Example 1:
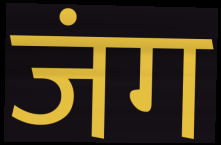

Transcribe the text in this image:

जंग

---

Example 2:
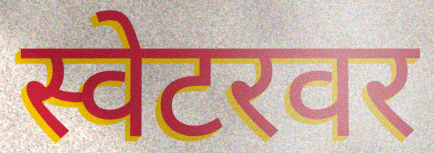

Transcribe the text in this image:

स्वेटरवर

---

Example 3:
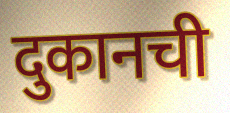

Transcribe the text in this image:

दुकानची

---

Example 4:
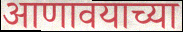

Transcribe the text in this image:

आणावयाच्या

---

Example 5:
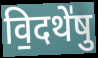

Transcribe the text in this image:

वि॒दथे॑षु